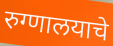
रुग्णालयाचे